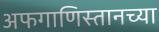
अफगाणिस्तानच्या